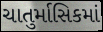
ચાતુર્માસિકમાં